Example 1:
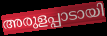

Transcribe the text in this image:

അരുളപ്പാടായി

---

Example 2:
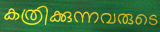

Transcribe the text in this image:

കത്രിക്കുന്നവരുടെ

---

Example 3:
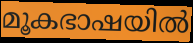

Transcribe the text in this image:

മൂകഭാഷയിൽ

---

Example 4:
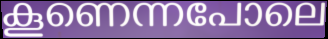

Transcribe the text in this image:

കൂണെന്നപോലെ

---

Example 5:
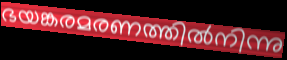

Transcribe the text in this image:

ഭയങ്കരമരണത്തിൽനിന്നു